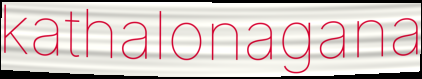
kathalonagana